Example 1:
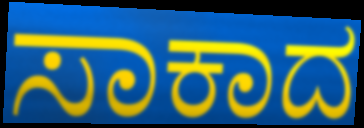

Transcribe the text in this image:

ಸಾಕಾದ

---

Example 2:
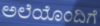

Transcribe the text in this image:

ಅಲೆಯೊಂದಿಗೆ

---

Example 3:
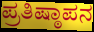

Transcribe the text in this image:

ಪ್ರತಿಷ್ಠಾಪನ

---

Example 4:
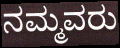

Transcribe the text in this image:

ನಮ್ಮವರು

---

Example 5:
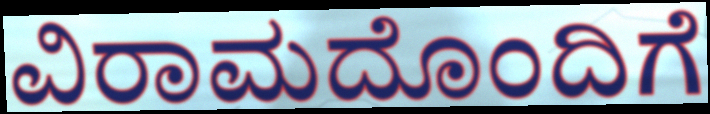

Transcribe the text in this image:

ವಿರಾಮದೊಂದಿಗೆ